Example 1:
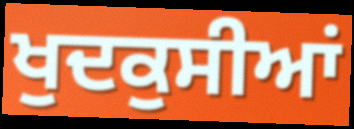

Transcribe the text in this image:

ਖੁਦਕੁਸੀਆਂ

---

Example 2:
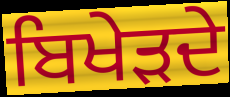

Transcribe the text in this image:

ਬਿਖੇੜਦੇ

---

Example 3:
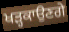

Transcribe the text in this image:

ਖੜ੍ਹਕਾਉਣਗੇ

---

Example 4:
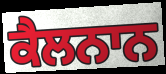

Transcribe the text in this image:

ਕੈਲਨਾਨ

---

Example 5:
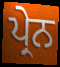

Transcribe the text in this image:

ਪ੍ਰੇਨ